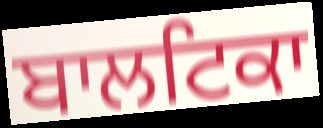
ਬਾਲਟਿਕਾ